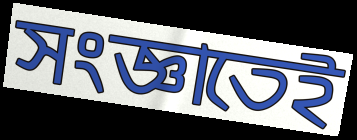
সংজ্ঞাতেই